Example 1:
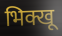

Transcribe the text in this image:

भिक्खू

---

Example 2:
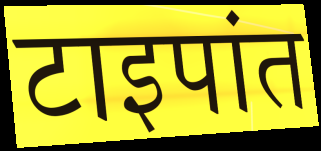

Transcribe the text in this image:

टाइपांत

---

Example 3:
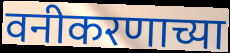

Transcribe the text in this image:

वनीकरणाच्या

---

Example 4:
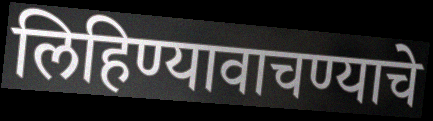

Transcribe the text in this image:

लिहिण्यावाचण्याचे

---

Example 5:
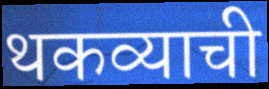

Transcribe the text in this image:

थकव्याची